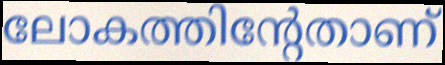
ലോകത്തിന്റേതാണ്